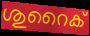
ശുറൈക്